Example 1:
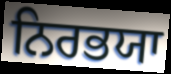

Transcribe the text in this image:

ਨਿਰਭਯਾ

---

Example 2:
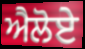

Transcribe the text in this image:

ਐਲੋਏ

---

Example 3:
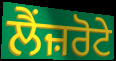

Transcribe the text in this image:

ਲੈਂਜ਼ਰੋਟੇ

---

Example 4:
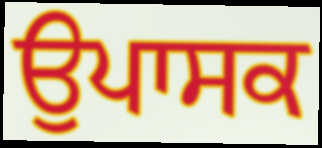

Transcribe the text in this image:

ਉਪਾਸਕ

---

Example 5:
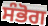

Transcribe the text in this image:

ਸੰਭੋਗ